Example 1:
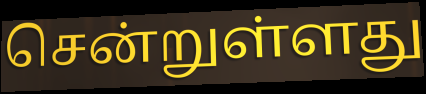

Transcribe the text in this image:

சென்றுள்ளது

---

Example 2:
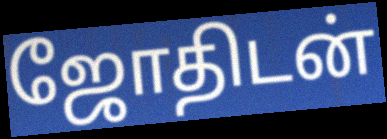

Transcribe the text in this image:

ஜோதிடன்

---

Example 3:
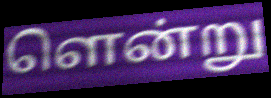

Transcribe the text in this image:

ளென்று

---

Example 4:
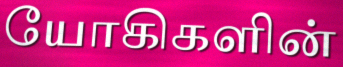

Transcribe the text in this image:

யோகிகளின்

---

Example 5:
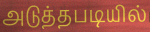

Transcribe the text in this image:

அடுத்தபடியில்